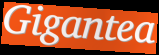
Gigantea